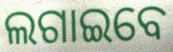
ଲଗାଇବେ